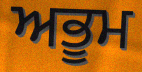
ਅਭੂਮ